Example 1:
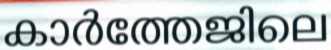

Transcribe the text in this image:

കാർത്തേജിലെ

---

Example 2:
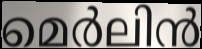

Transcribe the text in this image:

മെർലിൻ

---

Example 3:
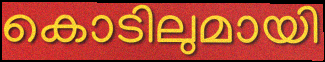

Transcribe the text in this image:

കൊടിലുമായി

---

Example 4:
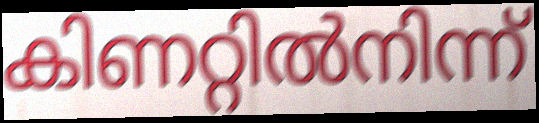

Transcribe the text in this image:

കിണറ്റിൽനിന്ന്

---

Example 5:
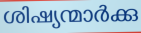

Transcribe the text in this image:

ശിഷ്യന്മാർക്കു